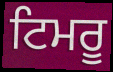
ਟਿਮਰੂ